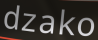
dzako